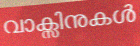
വാക്സിനുകൾ